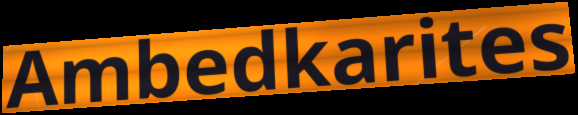
Ambedkarites